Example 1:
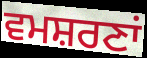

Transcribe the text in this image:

ਵਮਸ਼ਰਣਾਂ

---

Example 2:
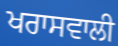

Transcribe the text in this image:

ਖਰਾਸਵਾਲੀ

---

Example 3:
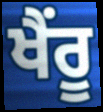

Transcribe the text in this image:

ਖੈਂਰੂ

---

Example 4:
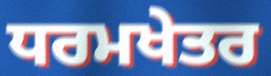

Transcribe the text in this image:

ਧਰਮਖੇਤਰ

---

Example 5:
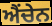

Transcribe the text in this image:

ਐਂਚੇਨ